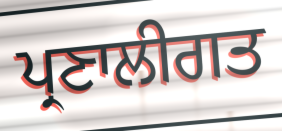
ਪ੍ਰਣਾਲੀਗਤ